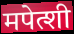
मपेत्शी